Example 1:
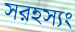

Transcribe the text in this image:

সরহস্যং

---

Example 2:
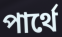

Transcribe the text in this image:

পার্থে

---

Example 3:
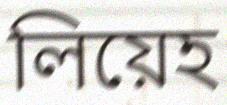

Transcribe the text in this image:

লিয়েহ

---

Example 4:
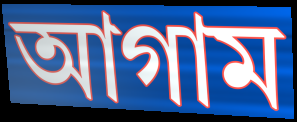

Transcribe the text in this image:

আগাম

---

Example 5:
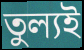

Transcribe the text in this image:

তুল্যই